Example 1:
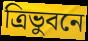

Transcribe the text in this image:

ত্রিভুবনে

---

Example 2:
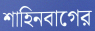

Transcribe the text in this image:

শাহিনবাগের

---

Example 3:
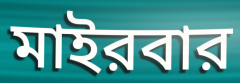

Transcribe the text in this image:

মাইরবার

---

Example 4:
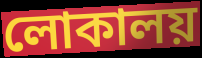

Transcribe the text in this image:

লোকালয়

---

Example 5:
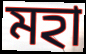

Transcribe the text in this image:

মহা